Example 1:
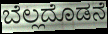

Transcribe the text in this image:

ಬೆಲ್ಲದೊಡನೆ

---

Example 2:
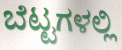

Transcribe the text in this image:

ಬೆಟ್ಟಗಳಲ್ಲಿ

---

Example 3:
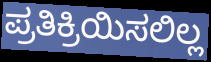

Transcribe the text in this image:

ಪ್ರತಿಕ್ರಿಯಿಸಲಿಲ್ಲ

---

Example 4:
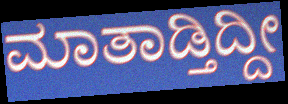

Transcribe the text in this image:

ಮಾತಾಡ್ತಿದ್ದೀ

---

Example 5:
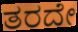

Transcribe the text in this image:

ತರದೇ